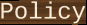
Policy